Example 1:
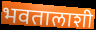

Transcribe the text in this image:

भवतालाशी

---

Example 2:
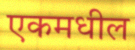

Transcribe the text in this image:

एकमधील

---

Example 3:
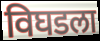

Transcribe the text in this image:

विघडला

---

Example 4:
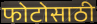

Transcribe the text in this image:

फोटोसाठी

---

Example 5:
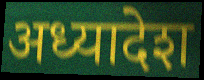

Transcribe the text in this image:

अध्यादेश